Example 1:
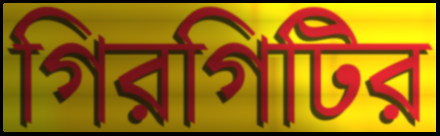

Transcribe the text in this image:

গিরগিটির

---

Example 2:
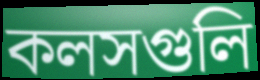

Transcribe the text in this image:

কলসগুলি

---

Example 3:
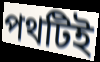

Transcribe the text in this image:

পথটিই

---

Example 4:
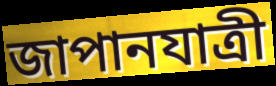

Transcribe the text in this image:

জাপানযাত্রী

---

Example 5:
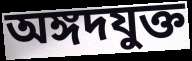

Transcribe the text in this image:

অঙ্গদযুক্ত